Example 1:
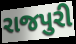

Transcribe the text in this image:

રાજપુરી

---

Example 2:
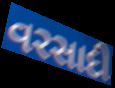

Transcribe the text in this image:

વરસાદી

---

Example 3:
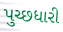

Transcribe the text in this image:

પુચ્છધારી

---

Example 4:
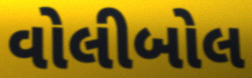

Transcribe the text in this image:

વોલીબોલ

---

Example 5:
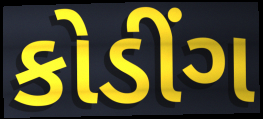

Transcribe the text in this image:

કોડીંગ